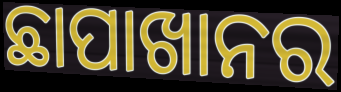
ଛାପାଖାନର